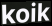
koik